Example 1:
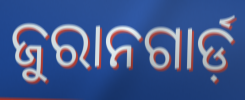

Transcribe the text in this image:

ଜୁରାନଗାର୍ଡ଼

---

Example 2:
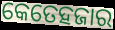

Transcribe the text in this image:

କେତେହଜାର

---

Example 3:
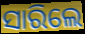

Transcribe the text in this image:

ସାରିଲେ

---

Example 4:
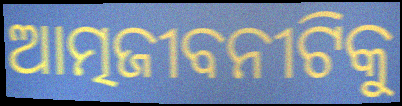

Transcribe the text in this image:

ଆତ୍ମଜୀବନୀଟିକୁ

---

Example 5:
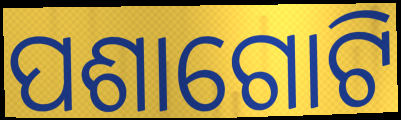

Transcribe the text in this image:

ପଶାଗୋଟି